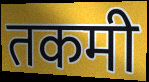
तकमी